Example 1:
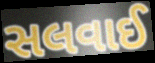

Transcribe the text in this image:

સલવાઈ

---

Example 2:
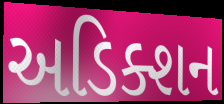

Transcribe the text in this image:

અડિક્શન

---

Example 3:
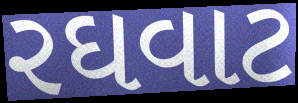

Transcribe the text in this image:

રઘવાટ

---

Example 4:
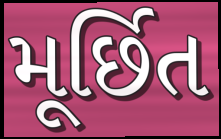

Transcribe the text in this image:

મૂર્છિત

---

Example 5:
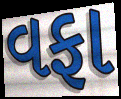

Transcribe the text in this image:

વફા